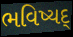
ભવિષ્યદ્